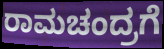
ರಾಮಚಂದ್ರಗೆ